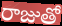
రాజుతో